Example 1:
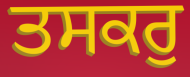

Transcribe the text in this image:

ਤਸਕਰੁ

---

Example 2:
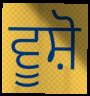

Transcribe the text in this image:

ਵੂਸ਼ੋ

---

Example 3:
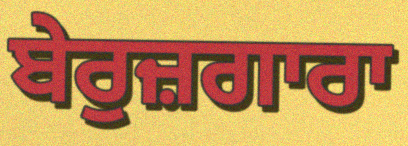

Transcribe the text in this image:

ਬੇਰੁਜ਼ਗਾਰਾ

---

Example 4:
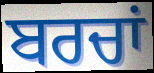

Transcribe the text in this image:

ਬਰਚਾਂ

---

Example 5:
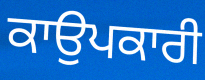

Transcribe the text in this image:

ਕਾਉਪਕਾਰੀ